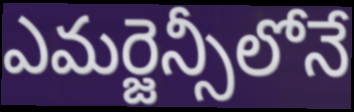
ఎమర్జెన్సీలోనే